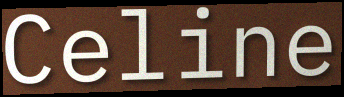
Celine